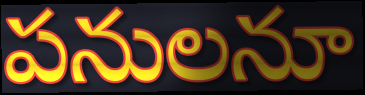
పనులనూ